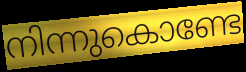
നിന്നുകൊണ്ടേ